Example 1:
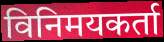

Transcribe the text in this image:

विनिमयकर्ता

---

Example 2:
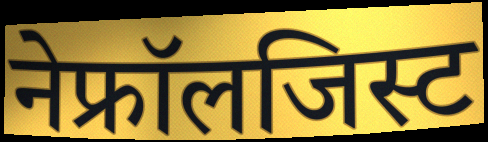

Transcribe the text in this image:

नेफ्रॉलजिस्ट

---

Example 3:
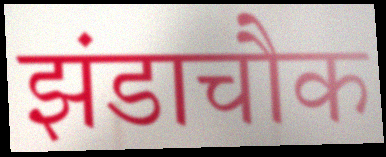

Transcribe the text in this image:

झंडाचौक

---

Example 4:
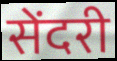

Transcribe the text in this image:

सेंदरी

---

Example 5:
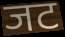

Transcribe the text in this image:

जट